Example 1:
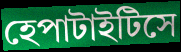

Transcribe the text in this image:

হেপাটাইটিসে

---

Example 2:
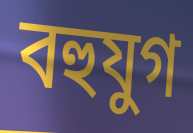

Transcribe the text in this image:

বহুযুগ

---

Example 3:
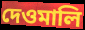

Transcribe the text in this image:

দেওমালি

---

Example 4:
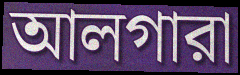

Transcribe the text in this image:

আলগারা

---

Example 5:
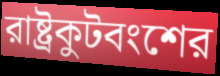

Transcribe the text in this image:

রাষ্ট্রকুটবংশের